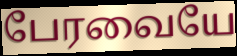
பேரவையே